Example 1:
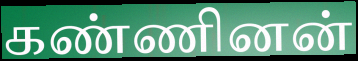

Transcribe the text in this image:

கண்ணினன்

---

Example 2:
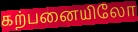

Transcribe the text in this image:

கற்பனையிலோ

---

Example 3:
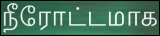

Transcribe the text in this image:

நீரோட்டமாக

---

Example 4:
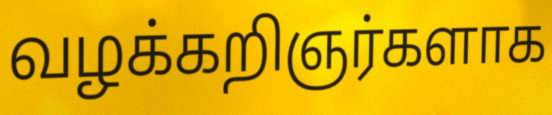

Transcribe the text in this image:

வழக்கறிஞர்களாக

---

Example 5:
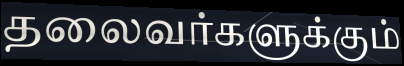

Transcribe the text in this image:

தலைவர்களுக்கும்